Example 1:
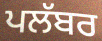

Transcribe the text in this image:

ਪਲੱਬਰ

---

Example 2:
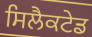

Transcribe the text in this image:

ਸਿਲੈਕਟੇਡ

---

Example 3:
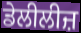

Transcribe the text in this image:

ਡੇਲੀਲੀਜ਼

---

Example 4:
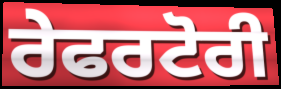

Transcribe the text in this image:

ਰੇਫਰਟੋਰੀ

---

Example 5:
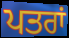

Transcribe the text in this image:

ਪਤਰਾਂ